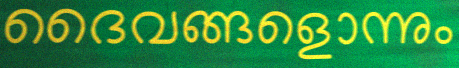
ദൈവങ്ങളൊന്നും